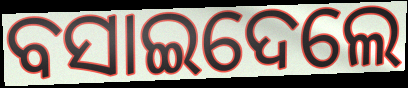
ବସାଇଦେଲେ